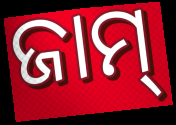
ଜାମ୍